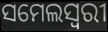
ସମେଲସ୍ୱରୀ